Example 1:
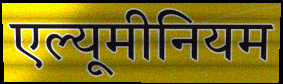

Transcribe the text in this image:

एल्‍यूमीनियम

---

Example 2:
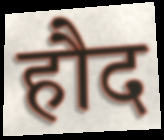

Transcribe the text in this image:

हौद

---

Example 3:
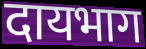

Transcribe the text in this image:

दायभाग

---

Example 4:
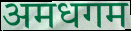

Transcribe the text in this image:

अमधगम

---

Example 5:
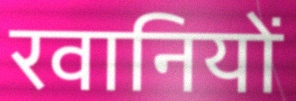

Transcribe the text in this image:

रवानियों